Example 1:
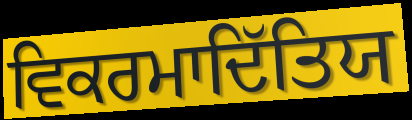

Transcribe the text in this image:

ਵਿਕਰਮਾਦਿੱਤਿਯ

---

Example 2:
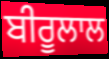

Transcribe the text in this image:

ਬੀਰੂਲਾਲ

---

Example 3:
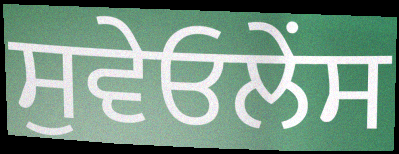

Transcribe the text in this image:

ਸੁਵੇਓਲੇਂਸ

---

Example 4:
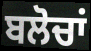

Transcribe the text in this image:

ਬਲੋਚਾਂ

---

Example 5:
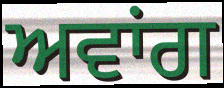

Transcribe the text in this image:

ਅਵਾਂਗ